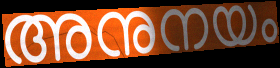
അനുനയം